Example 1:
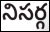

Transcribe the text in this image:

నిసర్గ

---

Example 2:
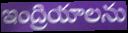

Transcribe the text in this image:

ఇంద్రియాలను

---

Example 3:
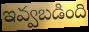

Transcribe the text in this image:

ఇవ్వబడింది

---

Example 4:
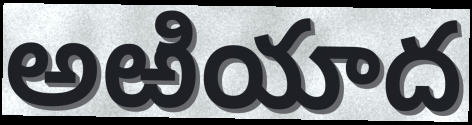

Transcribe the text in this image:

అఱియాద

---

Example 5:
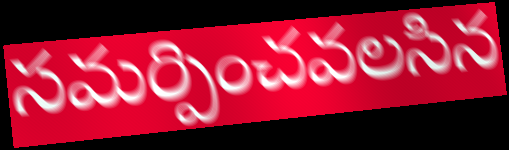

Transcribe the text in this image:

సమర్పించవలసిన